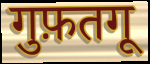
गुफ़तगू